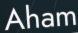
Aham